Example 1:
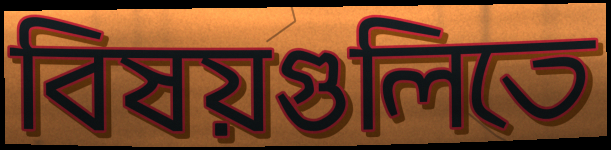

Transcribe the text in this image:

বিষয়গুলিতে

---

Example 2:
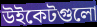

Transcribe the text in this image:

উইকেটগুলো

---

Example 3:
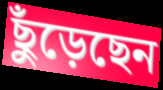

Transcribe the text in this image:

ছুঁড়েছেন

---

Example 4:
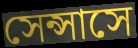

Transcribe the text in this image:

সেন্সাসে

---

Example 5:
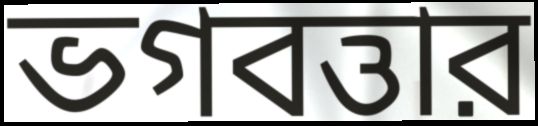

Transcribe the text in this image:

ভগবত্তার